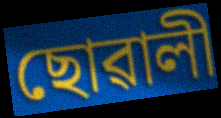
ছোৱালী